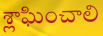
శ్లాఘించాలి